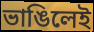
ভাঙিলেই